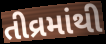
તીવ્રમાંથી